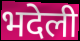
भदेली